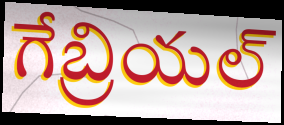
గేబ్రియల్